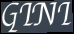
GINI